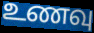
உணவு